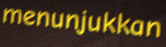
menunjukkan